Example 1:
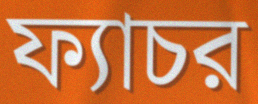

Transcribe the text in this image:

ফ্যাচর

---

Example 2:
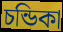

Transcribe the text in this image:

চন্ডিকা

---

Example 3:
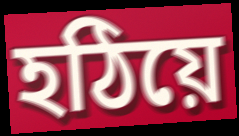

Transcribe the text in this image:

হঠিয়ে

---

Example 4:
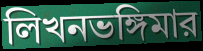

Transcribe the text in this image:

লিখনভঙ্গিমার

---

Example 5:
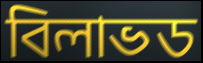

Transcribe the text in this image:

বিলাভড